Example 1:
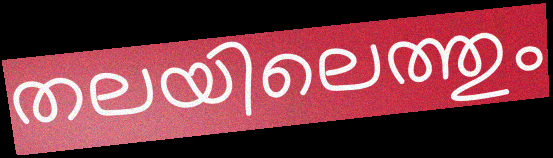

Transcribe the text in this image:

തലയിലെത്തും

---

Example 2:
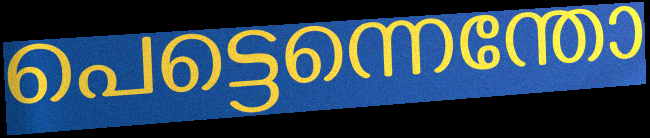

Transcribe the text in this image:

പെട്ടെന്നെന്തോ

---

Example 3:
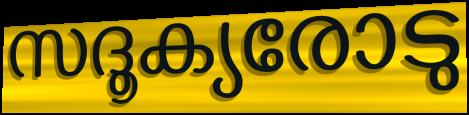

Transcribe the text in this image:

സദൂക്യരോടു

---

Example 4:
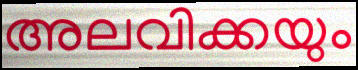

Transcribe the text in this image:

അലവിക്കയും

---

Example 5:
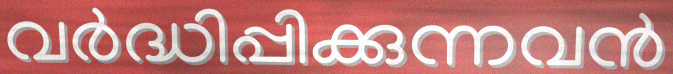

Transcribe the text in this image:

വർദ്ധിപ്പിക്കുന്നവൻ